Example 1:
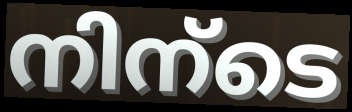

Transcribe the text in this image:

നിന്ടെ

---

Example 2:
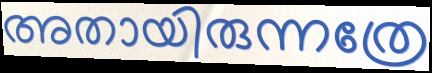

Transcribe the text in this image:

അതായിരുന്നത്രേ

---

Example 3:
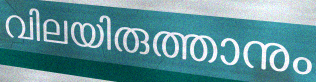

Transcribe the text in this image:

വിലയിരുത്താനും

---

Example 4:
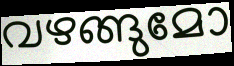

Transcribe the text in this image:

വഴങ്ങുമോ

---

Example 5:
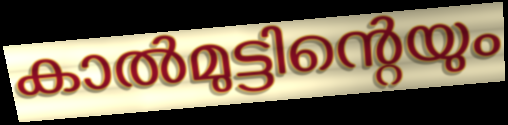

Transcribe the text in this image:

കാൽമുട്ടിന്റെയും